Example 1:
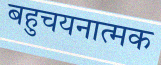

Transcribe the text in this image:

बहुचयनात्मक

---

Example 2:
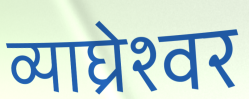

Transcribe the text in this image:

व्याघ्रेश्वर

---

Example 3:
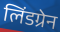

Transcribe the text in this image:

लिंडग्रेन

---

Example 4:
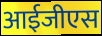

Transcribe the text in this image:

आईजीएस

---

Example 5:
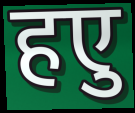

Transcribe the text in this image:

हएु